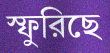
স্ফুরিছে